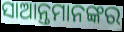
ସାଆନ୍ତମାନଙ୍କର